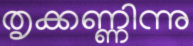
തൃക്കണ്ണിന്നു